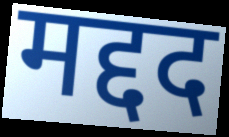
मद्दद